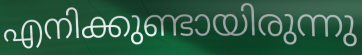
എനിക്കുണ്ടായിരുന്നു